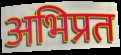
अभिप्रत